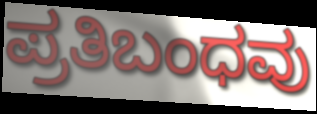
ಪ್ರತಿಬಂಧವು